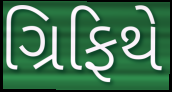
ગ્રિફિથે